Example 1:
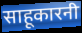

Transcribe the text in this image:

साहूकारनी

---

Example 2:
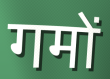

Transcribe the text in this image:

गमों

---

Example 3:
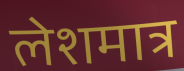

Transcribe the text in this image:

लेशमात्र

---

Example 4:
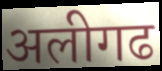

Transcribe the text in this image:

अलीगढ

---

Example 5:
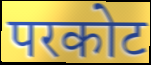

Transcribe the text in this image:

परकोट